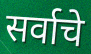
सर्वाचे